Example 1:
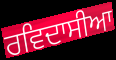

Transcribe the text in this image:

ਰਵਿਦਾਸੀਆ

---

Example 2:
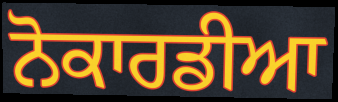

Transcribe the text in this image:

ਨੋਕਾਰਡੀਆ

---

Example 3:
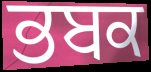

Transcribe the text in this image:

ਭਬਕ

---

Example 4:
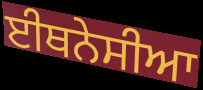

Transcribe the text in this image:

ਈਥਨੇਸੀਆ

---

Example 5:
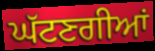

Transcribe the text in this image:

ਘੱਟਣਗੀਆਂ